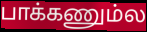
பாக்கணும்ல